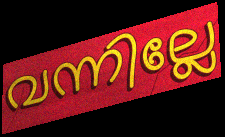
വന്നില്ലേ